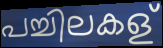
പച്ചിലകള്